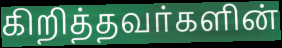
கிறித்தவர்களின்